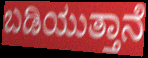
ಬಡಿಯುತ್ತಾನೆ